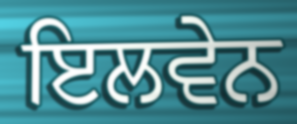
ਇਲਵੇਨ